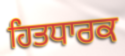
ਹਿਤਧਾਰਕ